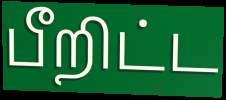
பீறிட்ட